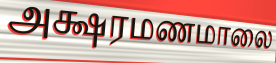
அக்ஷரமணமாலை